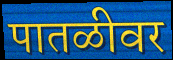
पातळीवर